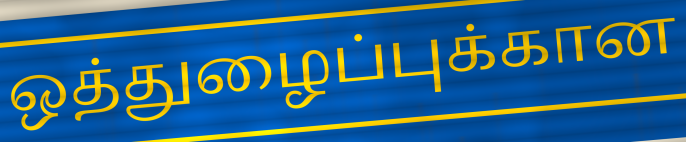
ஒத்துழைப்புக்கான